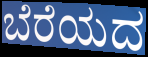
ಬೆರೆಯದ